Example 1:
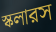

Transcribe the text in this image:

স্কলারস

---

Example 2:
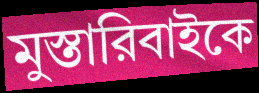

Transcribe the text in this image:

মুস্তারিবাইকে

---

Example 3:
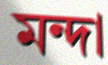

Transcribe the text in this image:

মন্দা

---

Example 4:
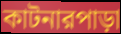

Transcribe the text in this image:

কাটনারপাড়া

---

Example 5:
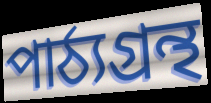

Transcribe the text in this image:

পাঠ্যগ্রন্থ